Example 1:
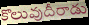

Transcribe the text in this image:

కొలువుదీరాడు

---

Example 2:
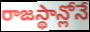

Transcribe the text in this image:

రాజస్థాన్లోనే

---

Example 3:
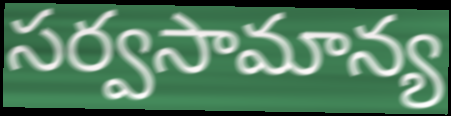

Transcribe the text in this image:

సర్వసామాన్య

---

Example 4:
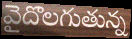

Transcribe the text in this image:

వైదొలగుతున్న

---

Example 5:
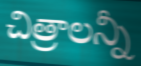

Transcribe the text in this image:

చిత్రాలన్నీ